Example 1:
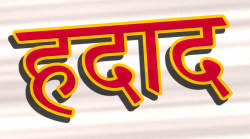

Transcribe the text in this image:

हदाद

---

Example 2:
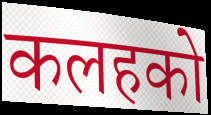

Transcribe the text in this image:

कलहको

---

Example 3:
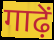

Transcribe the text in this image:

गाढ़ें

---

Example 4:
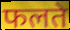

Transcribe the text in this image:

फलते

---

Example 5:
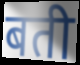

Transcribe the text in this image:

बती